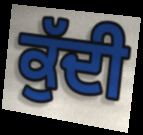
ਕੁੱਦੀ